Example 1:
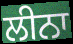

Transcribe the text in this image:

ਲੀਨਾ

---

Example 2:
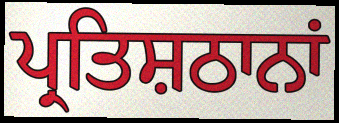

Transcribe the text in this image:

ਪ੍ਰਤਿਸ਼ਠਾਨਾਂ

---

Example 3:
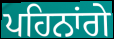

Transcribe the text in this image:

ਪਹਿਨਾਂਗੇ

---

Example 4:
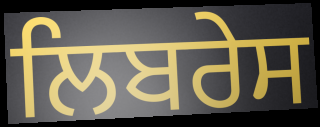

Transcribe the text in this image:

ਲਿਬਰੇਸ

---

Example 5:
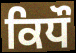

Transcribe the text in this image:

ਕਿਧੌ